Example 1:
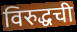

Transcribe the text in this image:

विरुद्धची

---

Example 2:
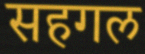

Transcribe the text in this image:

सहगल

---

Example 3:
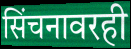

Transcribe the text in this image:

सिंचनावरही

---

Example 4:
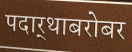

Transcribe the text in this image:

पदार्थाबरोबर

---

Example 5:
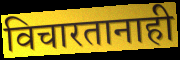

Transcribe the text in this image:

विचारतानाही